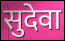
सुदेवा